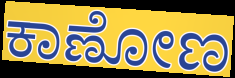
ಕಾಣೋಣ